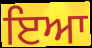
ਇਆ